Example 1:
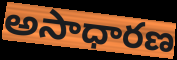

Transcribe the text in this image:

అసాధారణ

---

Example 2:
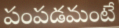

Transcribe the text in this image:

పంపడమంటే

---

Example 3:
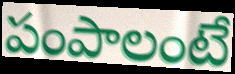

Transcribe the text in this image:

పంపాలంటే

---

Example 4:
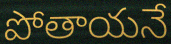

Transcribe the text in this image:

పోతాయనే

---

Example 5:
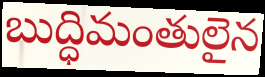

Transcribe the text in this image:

బుద్ధిమంతులైన